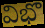
విభొ